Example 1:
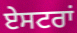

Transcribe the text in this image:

ਏਸਟਰਾਂ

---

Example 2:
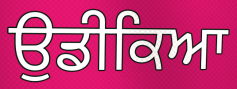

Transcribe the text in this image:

ਉਡੀਕਿਆ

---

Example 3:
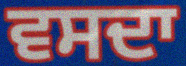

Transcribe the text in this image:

ਵਸਦਾ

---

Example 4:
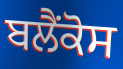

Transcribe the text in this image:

ਬਲੈਂਕੋਸ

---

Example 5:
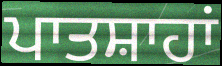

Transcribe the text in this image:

ਪਾਤਸ਼ਾਹਾਂ